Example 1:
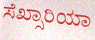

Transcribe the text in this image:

ಸೆಖ್ಸಾರಿಯಾ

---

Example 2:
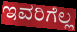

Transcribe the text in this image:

ಇವರಿಗೆಲ್ಲ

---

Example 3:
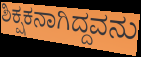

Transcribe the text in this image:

ಶಿಕ್ಷಕನಾಗಿದ್ದವನು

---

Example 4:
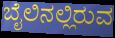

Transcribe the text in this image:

ಬೈಲಿನಲ್ಲಿರುವ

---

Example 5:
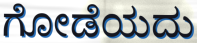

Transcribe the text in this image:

ಗೋಡೆಯದು